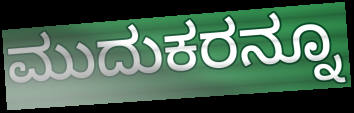
ಮುದುಕರನ್ನೂ